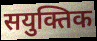
सयुक्तिक